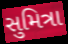
સુમિત્રા